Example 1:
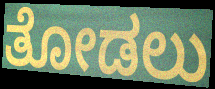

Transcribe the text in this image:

ತೋಡಲು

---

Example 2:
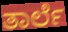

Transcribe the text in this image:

ತಾರ್ಲೆ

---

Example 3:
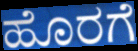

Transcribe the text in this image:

ಹೊರಗೆ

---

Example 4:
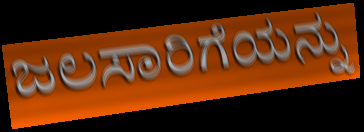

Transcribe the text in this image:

ಜಲಸಾರಿಗೆಯನ್ನು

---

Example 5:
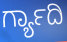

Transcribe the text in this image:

ರ್ಗ್ಯಾದಿ